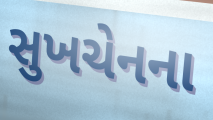
સુખચેનના